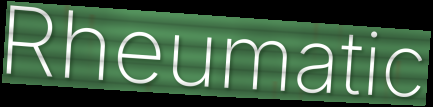
Rheumatic